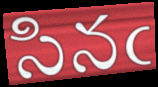
సినఁ